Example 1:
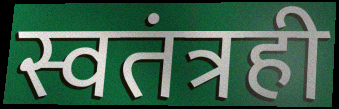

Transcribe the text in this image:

स्वतंत्रही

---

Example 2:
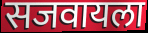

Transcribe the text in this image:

सजवायला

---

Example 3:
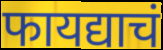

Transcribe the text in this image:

फायद्याचं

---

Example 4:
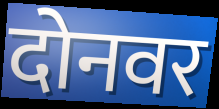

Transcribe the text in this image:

दोनवर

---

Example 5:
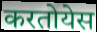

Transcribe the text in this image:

करतोयेस